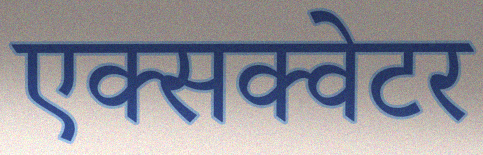
एक्सक्वेटर